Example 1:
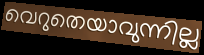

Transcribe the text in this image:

വെറുതെയാവുന്നില്ല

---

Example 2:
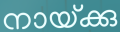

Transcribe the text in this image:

നായ്‌ക്കു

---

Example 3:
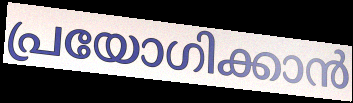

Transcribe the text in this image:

പ്രയോഗിക്കാൻ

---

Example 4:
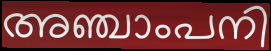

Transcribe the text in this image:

അഞ്ചാംപനി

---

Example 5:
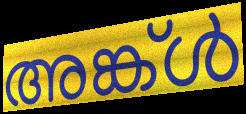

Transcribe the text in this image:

അങ്ക്ൾ